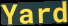
Yard